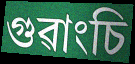
গুৱাংচি